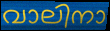
വാലിനാ